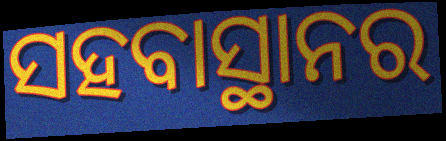
ସହବାସ୍ଥାନର